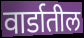
वार्डातील